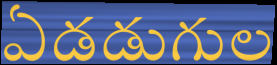
ఏడడుగుల